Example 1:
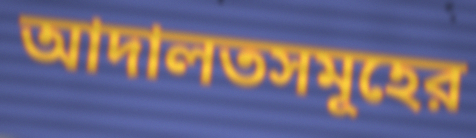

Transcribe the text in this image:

আদালতসমূহের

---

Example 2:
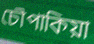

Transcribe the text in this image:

চৌপাকিয়া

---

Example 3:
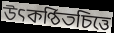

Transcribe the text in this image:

উৎকণ্ঠিতচিত্তে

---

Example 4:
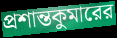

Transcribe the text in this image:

প্রশান্তকুমারের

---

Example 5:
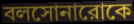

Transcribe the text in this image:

বলসোনারোকে